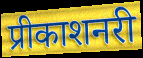
प्रीकाशनरी